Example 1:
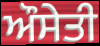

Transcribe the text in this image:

ਔਸੇਤੀ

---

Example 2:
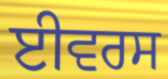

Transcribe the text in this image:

ਈਵਰਸ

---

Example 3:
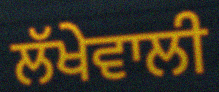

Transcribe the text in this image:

ਲੱਖੇਵਾਲੀ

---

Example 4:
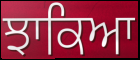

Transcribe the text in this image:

ਝਾਕਿਆ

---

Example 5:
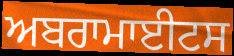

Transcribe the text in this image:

ਅਬਰਾਮਾਈਟਸ